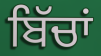
ਬਿੱਚਾਂ